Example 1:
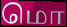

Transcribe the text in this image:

மொ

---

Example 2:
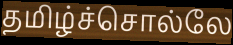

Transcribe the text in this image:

தமிழ்ச்சொல்லே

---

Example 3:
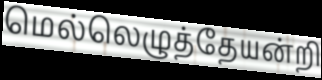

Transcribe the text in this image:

மெல்லெழுத்தேயன்றி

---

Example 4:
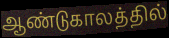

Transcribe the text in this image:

ஆண்டுகாலத்தில்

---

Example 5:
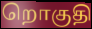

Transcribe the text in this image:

றொகுதி